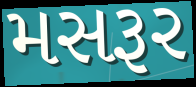
મસરૂર